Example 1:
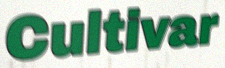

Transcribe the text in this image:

Cultivar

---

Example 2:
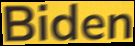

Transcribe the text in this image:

Biden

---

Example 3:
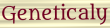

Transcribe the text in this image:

Geneticaly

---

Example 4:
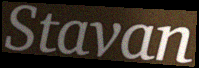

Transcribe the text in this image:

Stavan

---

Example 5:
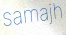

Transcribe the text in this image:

samajh